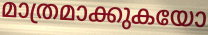
മാത്രമാക്കുകയോ